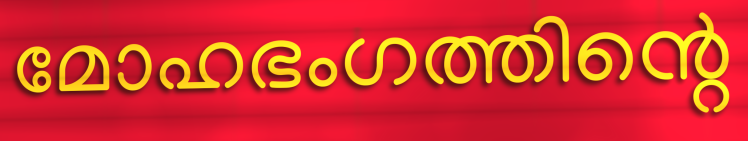
മോഹഭംഗത്തിന്റെ